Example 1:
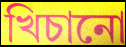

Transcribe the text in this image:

খিচানো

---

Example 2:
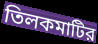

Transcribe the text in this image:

তিলকমাটির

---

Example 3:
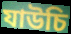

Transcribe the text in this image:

যাউচি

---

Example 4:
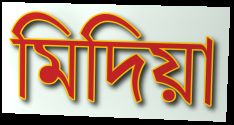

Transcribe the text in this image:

মিদিয়া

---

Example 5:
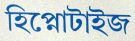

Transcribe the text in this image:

হিপ্নোটাইজ